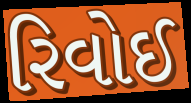
રિવોઈ